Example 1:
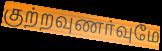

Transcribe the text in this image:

குற்றவுணர்வுமே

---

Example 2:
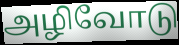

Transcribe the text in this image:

அழிவோடு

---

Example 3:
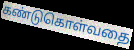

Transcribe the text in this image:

கண்டுகொள்வதை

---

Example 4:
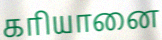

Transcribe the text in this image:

கரியானை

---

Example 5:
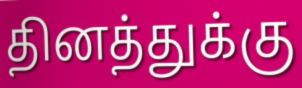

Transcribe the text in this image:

தினத்துக்கு